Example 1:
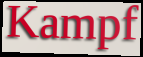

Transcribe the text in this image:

Kampf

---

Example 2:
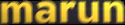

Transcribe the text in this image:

marun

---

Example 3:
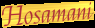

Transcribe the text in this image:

Hosamani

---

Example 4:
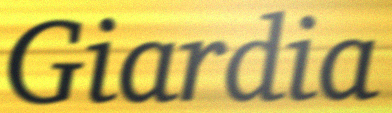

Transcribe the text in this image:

Giardia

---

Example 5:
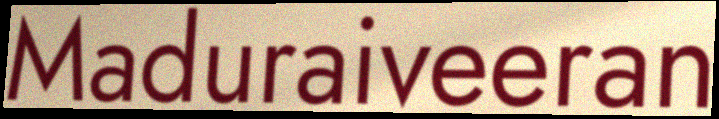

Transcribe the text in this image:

Maduraiveeran